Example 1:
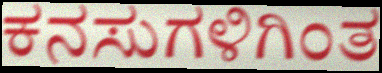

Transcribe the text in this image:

ಕನಸುಗಳಿಗಿಂತ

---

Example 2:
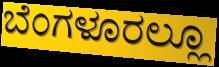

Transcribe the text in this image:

ಬೆಂಗಳೂರಲ್ಲೂ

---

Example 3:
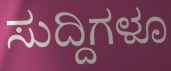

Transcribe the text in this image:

ಸುದ್ದಿಗಳೂ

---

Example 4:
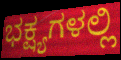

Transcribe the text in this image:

ಭಕ್ಷ್ಯಗಳಲ್ಲಿ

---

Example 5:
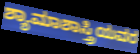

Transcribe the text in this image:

ಶ್ಯಾಮಾಶಾಸ್ತ್ರಿಯವರ